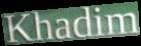
Khadim